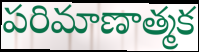
పరిమాణాత్మక